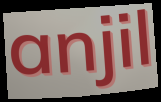
anjil